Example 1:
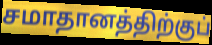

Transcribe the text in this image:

சமாதானத்திற்குப்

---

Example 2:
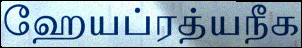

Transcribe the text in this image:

ஹேயப்ரத்யநீக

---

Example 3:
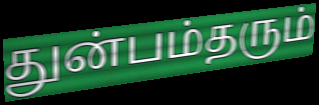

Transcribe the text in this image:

துன்பம்தரும்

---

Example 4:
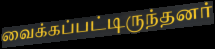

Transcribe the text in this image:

வைக்கப்பட்டிருந்தனர்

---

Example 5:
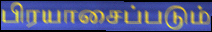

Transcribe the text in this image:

பிரயாசைப்படும்